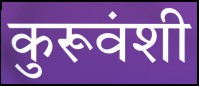
कुरूवंशी